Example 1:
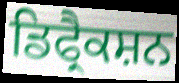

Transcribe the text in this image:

ਡਿਫ੍ਰੈਕਸ਼ਨ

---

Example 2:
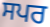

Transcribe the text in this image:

ਸਪਰ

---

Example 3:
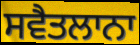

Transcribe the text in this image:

ਸਵੈਤਲਾਨਾ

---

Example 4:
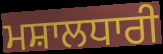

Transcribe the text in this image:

ਮਸ਼ਾਲਧਾਰੀ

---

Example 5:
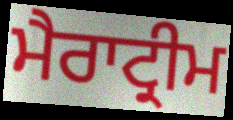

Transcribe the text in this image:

ਮੈਰਾਟ੍ਰੀਮ